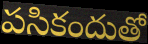
పసికందుతో